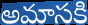
అమాసకి